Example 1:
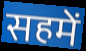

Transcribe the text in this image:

सहमें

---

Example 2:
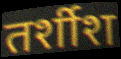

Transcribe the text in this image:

तर्शीश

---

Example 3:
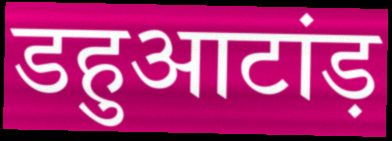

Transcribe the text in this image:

डहुआटांड़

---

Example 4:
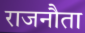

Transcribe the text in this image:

राजनौता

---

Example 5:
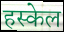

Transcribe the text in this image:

हस्केल